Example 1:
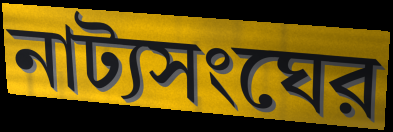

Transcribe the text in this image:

নাট্যসংঘের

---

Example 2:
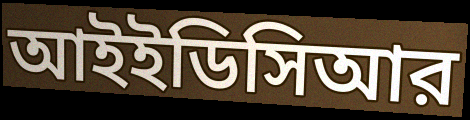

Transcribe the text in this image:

আইইডিসিআর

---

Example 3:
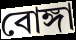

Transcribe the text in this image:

বোঙ্গা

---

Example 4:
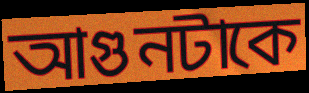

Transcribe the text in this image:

আগুনটাকে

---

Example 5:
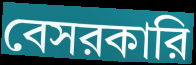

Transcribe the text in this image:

বেসরকারি